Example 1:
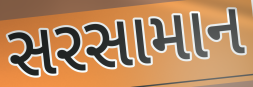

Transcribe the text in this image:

સરસામાન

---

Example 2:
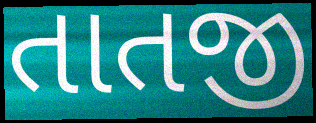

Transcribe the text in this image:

તાતજી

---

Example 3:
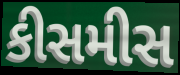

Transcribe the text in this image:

કીસમીસ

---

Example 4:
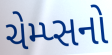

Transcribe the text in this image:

ચેમ્પ્સનો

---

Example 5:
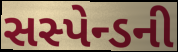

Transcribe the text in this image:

સસ્પેન્ડની